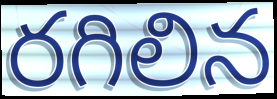
రగిలిన